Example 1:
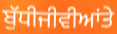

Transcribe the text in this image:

ਬੁੱਧੀਜੀਵੀਆਂਤੇ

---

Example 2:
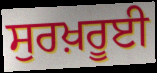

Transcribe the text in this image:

ਸੁਰਖ਼ਰੂਈ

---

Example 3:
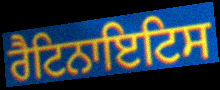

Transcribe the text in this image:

ਰੈਟਿਨਾਇਟਿਸ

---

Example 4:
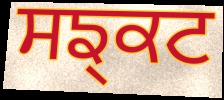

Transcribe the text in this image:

ਸਙ੍ਕਟ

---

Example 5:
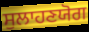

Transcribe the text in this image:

ਸੁਲਾਹਣਯੋਗ